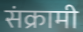
संक्रामी